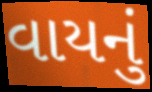
વાયનું